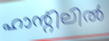
ഹാന്റിലിൽ